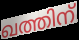
ഖത്തിന്